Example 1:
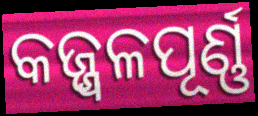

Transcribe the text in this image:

କଜ୍ଜ୍ୱଳପୂର୍ଣ୍ଣ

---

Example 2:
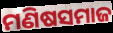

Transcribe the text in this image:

ମଣିଷସମାଜ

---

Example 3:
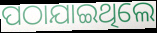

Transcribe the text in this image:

ପଠାଯାଇଥିଲେ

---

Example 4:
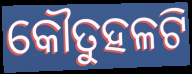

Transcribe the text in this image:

କୌତୁହଳଟି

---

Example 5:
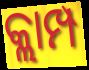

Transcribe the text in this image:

କ୍ଲାମ୍ପ